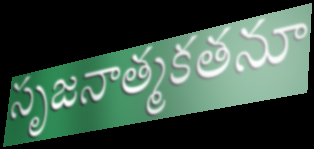
సృజనాత్మకతనూ